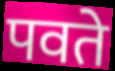
पवते